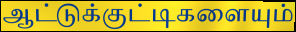
ஆட்டுக்குட்டிகளையும்